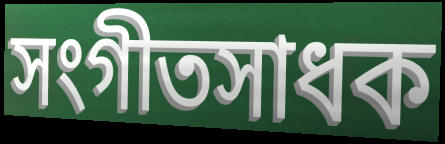
সংগীতসাধক